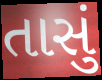
તાસું